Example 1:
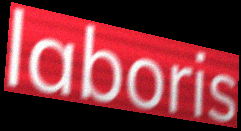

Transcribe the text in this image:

laboris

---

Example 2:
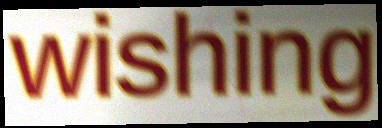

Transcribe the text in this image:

wishing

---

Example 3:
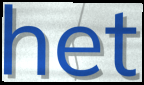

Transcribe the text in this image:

het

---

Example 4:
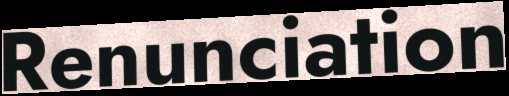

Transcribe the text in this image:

Renunciation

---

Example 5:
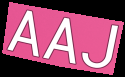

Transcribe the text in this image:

AAJ